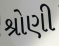
શ્રોણી